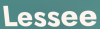
Lessee